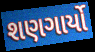
શણગાર્યો